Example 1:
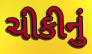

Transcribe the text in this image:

ચીકીનું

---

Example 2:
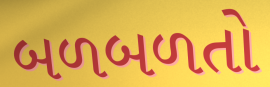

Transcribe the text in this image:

બળબળતો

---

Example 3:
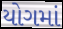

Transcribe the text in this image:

યોગમાં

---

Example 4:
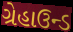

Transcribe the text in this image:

ગ્રેહાઉન્ડ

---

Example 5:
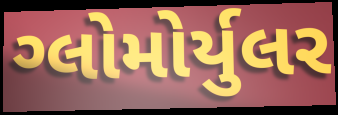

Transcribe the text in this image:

ગ્લોમોર્યુલર